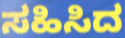
ಸಹಿಸಿದ